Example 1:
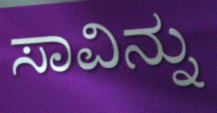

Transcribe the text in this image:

ಸಾವಿನ್ನು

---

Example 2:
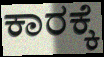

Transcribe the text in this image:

ಕಾರಕ್ಕೆ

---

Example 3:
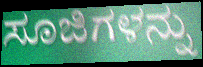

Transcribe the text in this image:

ಸೂಜಿಗಳನ್ನು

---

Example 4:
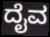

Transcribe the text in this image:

ದೈವ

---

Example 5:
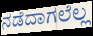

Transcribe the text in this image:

ನಡೆದಾಗಲೆಲ್ಲ